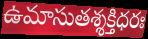
ఉమాసుతశ్శక్తిధరః